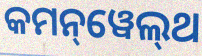
କମନ୍‌ୱେଲ୍‌ଥ